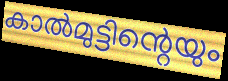
കാൽമുട്ടിന്റെയും